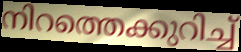
നിറത്തെക്കുറിച്ച്